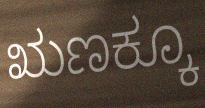
ಋಣಕ್ಕೂ